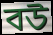
বউ